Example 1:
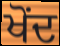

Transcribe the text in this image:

ਖੋਂਦ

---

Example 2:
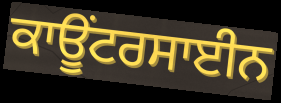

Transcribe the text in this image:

ਕਾਊਂਟਰਸਾਈਨ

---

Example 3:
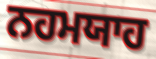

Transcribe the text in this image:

ਨਹਮਯਾਹ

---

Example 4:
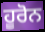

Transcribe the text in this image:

ਹੂਰੋਨ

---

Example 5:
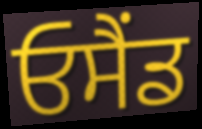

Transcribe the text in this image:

ਓਸੈਂਡ